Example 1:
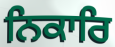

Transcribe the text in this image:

ਨਿਕਾਰਿ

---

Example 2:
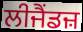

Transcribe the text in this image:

ਲੀਜੈਂਡਜ਼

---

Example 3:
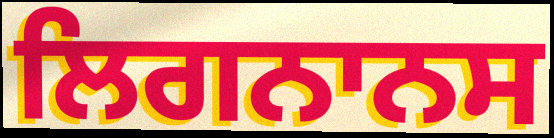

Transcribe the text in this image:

ਲਿਗਨਾਨਸ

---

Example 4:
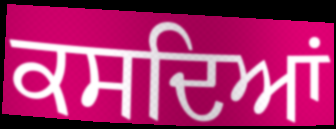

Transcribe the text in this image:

ਕਸਦਿਆਂ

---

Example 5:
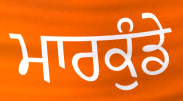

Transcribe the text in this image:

ਮਾਰਕੁੰਡੇ